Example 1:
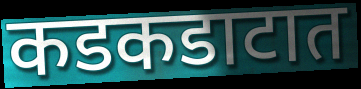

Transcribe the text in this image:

कडकडाटात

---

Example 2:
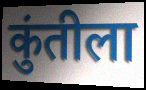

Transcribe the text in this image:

कुंतीला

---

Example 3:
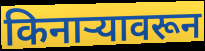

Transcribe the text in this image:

किनाऱ्यावरून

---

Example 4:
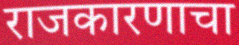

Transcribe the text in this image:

राजकारणाचा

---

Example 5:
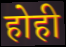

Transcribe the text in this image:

होही